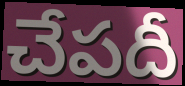
చేపదీ